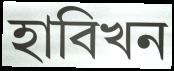
হাবিখন